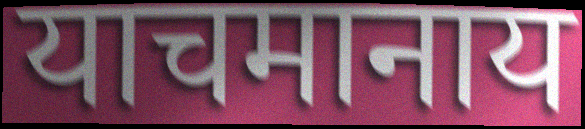
याचमानाय